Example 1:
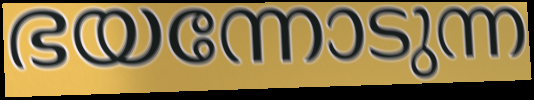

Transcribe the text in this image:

ഭയന്നോടുന്ന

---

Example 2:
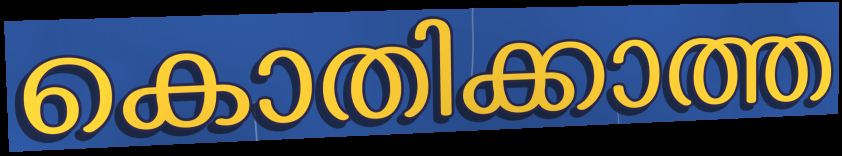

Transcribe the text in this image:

കൊതിക്കാത്ത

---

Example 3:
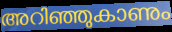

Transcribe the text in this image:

അറിഞ്ഞുകാണും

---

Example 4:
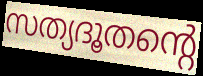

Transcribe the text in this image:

സത്യദൂതന്റെ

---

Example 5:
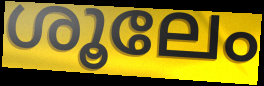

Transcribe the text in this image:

ശൂലേം